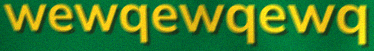
wewqewqewq